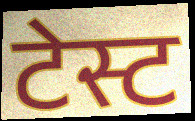
टेस्ट